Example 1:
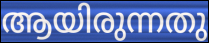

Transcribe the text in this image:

ആയിരുന്നതു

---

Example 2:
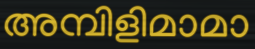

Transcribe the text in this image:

അമ്പിളിമാമാ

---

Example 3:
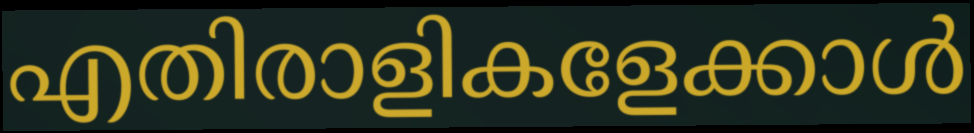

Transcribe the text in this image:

എതിരാളികളേക്കാൾ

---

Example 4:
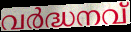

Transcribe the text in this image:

വർദ്ധനവ്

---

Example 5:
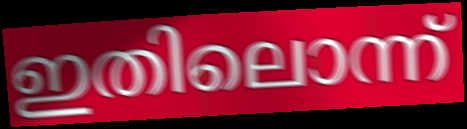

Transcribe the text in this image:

ഇതിലൊന്ന്